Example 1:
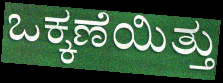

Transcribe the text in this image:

ಒಕ್ಕಣೆಯಿತ್ತು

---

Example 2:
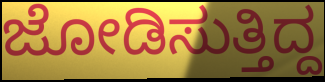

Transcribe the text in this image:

ಜೋಡಿಸುತ್ತಿದ್ದ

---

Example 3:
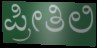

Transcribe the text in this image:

ಪ್ರೀತಿಲಿ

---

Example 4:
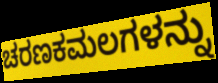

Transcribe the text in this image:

ಚರಣಕಮಲಗಳನ್ನು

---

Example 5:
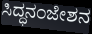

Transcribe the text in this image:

ಸಿದ್ಧನಂಜೇಶನ